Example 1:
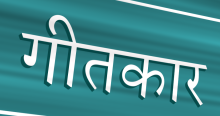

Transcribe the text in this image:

गीतकार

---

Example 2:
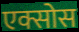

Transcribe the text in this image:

एक्सोस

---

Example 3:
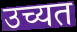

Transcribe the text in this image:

उच्यत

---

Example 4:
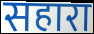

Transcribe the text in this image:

सहारा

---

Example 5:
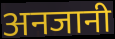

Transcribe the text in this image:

अनजानी